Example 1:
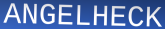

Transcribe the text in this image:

ANGELHECK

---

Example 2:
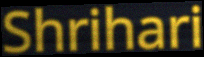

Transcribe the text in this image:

Shrihari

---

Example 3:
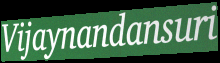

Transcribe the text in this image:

Vijaynandansuri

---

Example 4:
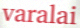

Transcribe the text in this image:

varalai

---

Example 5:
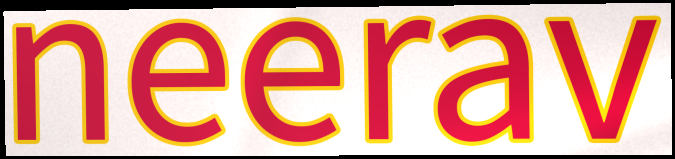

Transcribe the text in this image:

neerav